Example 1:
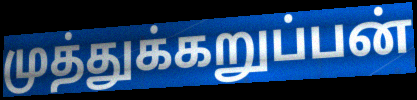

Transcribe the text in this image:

முத்துக்கறுப்பன்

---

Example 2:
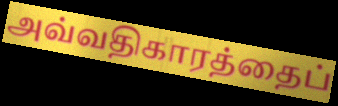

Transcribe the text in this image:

அவ்வதிகாரத்தைப்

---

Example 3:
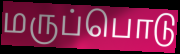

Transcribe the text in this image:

மருப்பொடு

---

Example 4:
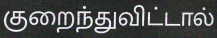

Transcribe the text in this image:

குறைந்துவிட்டால்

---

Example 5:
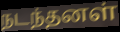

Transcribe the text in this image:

நடந்தனள்